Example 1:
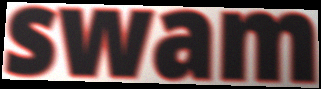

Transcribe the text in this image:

swam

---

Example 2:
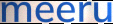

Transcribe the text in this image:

meeru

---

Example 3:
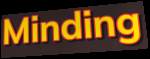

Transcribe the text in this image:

Minding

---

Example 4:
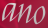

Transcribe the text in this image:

ano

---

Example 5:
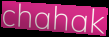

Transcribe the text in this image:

chahak